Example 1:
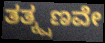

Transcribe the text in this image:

ತತ್ಕ್ಷಣವೇ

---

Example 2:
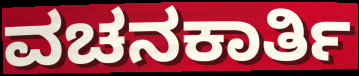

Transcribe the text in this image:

ವಚನಕಾರ್ತಿ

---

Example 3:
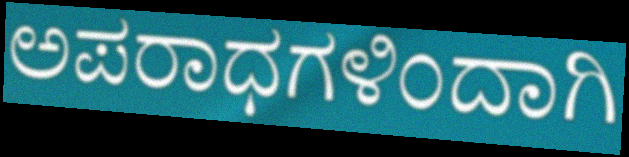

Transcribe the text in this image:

ಅಪರಾಧಗಳಿಂದಾಗಿ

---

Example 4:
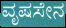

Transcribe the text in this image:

ವೃಷಸೇನ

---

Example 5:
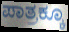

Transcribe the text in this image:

ಪಾತ್ರಕ್ಕೂ